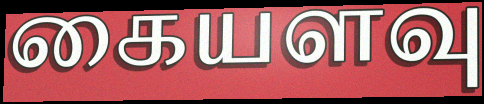
கையளவு